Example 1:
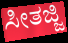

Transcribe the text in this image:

ಸೀತಜ್ಜಿ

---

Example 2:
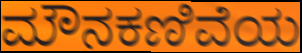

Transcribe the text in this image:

ಮೌನಕಣಿವೆಯ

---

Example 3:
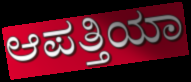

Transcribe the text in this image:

ಆಪತ್ತಿಯಾ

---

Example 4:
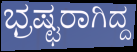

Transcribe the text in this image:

ಭ್ರಷ್ಟರಾಗಿದ್ದ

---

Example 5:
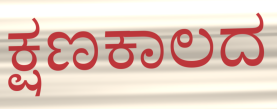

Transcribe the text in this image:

ಕ್ಷಣಕಾಲದ